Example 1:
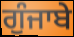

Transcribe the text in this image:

ਗੁੰਜਾਬੇ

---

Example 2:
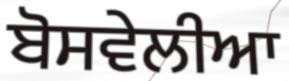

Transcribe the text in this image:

ਬੋਸਵੇਲੀਆ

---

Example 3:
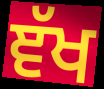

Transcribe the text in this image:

ਞੱਖ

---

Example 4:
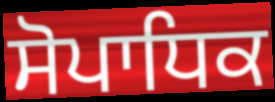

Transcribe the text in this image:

ਸੋਪਾਧਿਕ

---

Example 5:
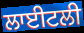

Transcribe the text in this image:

ਲਾਈਟਲੀ